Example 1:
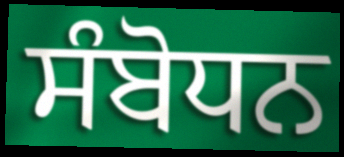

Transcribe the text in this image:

ਸੰਬੋਧਨ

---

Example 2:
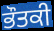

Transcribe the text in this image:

ਭੌਤਕੀ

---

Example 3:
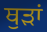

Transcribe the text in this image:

ਥੁੜਾਂ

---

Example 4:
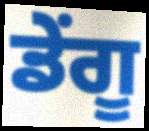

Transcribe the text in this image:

ਡੇਂਗੂ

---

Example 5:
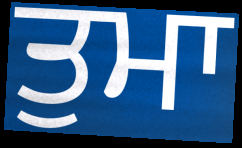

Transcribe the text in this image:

ਤੁਮਾ